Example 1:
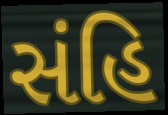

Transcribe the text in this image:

સંહિ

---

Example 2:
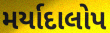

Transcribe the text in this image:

મર્યાદાલોપ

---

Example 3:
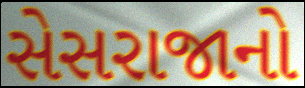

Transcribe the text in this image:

સેસરાજાનો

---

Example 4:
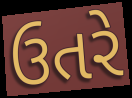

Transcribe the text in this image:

ઉતરે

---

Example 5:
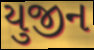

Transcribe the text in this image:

યુજીન